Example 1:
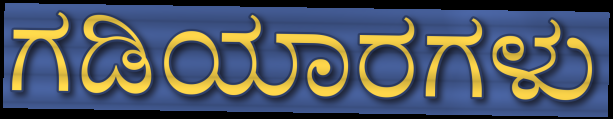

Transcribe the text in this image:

ಗಡಿಯಾರಗಳು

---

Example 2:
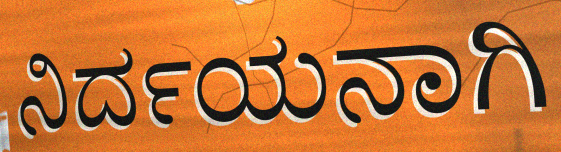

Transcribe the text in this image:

ನಿರ್ದಯನಾಗಿ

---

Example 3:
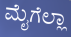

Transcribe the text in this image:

ಮೈಗೆಲ್ಲಾ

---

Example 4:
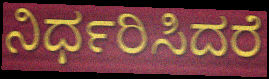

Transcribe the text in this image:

ನಿರ್ಧರಿಸಿದರೆ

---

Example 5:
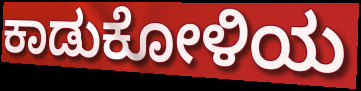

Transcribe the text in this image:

ಕಾಡುಕೋಳಿಯ